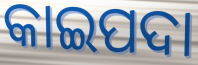
କାଇପଦା